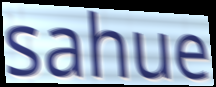
sahue